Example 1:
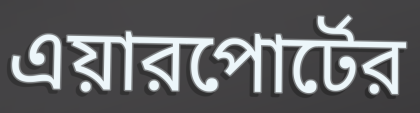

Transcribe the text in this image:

এয়ারপোর্টের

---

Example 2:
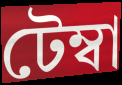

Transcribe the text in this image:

টেম্বা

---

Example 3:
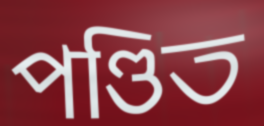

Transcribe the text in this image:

পণ্ডিত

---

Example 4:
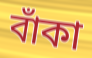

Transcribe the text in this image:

বাঁকা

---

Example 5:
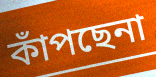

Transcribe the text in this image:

কাঁপছেনা